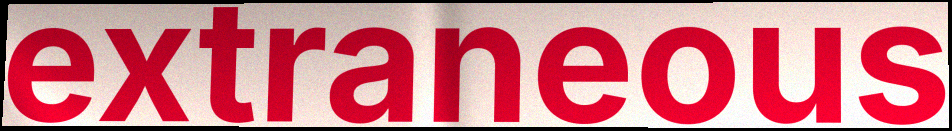
extraneous